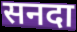
सनदा